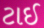
ટાઈ